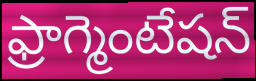
ఫ్రాగ్మెంటేషన్